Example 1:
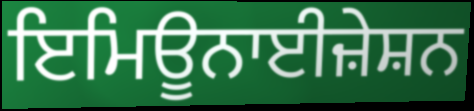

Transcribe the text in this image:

ਇਮਿਊਨਾਈਜ਼ੇਸ਼ਨ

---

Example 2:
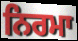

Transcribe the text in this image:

ਨਿਰਮਾ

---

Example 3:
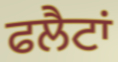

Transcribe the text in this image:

ਫਲੈਟਾਂ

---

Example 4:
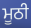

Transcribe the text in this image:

ਮੂਠੀ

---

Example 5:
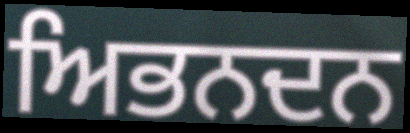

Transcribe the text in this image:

ਅਿਭਨਦਨ